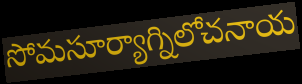
సోమసూర్యాగ్నిలోచనాయ